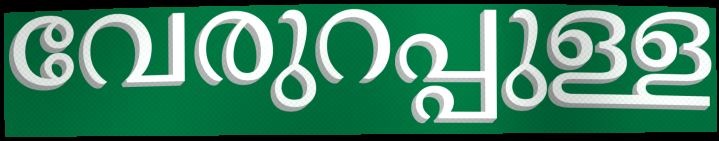
വേരുറപ്പുള്ള